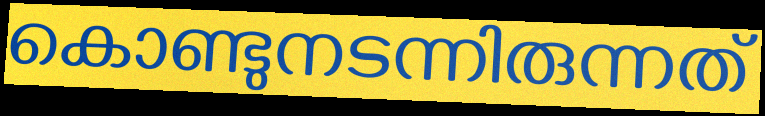
കൊണ്ടുനടന്നിരുന്നത്